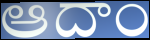
ఆదాం